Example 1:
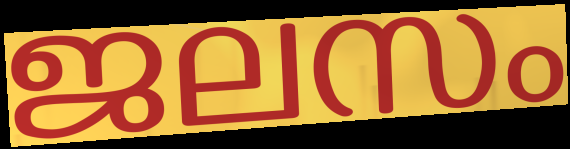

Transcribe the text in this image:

ജലസം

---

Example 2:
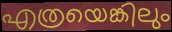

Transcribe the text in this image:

എത്രയെങ്കിലും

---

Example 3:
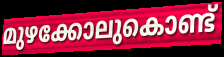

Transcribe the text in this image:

മുഴക്കോലുകൊണ്ട്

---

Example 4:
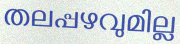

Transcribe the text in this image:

തലപ്പഴവുമില്ല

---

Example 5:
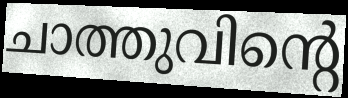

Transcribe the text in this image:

ചാത്തുവിന്റെ